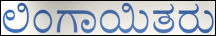
ಲಿಂಗಾಯಿತರು